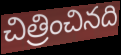
చిత్రించినది